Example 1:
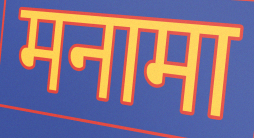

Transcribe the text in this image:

मनामा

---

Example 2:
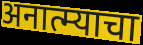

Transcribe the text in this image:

अनात्म्याचा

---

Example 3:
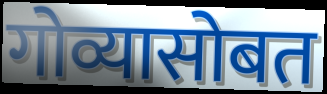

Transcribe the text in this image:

गोव्यासोबत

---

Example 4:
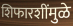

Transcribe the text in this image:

शिफारशींमुळे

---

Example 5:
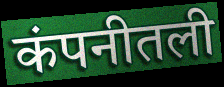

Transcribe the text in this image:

कंपनीतली